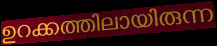
ഉറക്കത്തിലായിരുന്ന